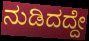
ನುಡಿದದ್ದೇ